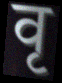
वृ